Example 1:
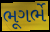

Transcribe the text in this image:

ભૂગર્ભે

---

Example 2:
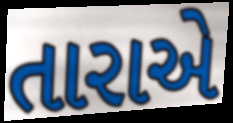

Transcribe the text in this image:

તારાએ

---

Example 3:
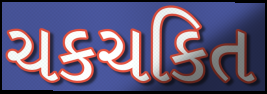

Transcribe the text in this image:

ચકચકિત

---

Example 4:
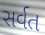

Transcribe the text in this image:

સર્વત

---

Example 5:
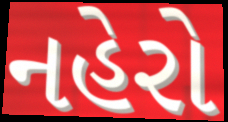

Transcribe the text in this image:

નહેરો